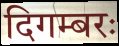
दिगम्बरः